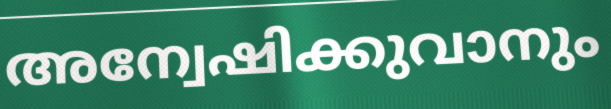
അന്വേഷിക്കുവാനും